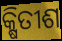
କ୍ଷିତୀଶ